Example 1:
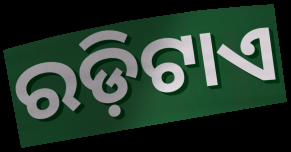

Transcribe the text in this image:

ରଡ଼ିଟାଏ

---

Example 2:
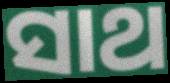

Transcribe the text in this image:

ସାଥ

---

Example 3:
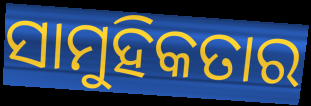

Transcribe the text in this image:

ସାମୁହିକତାର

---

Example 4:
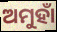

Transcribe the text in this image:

ଅମୁହାଁ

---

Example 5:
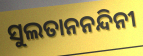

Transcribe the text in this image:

ସୁଲତାନନନ୍ଦିନୀ